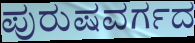
ಪುರುಷವರ್ಗದ